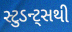
સ્ટુડન્ટ્સથી